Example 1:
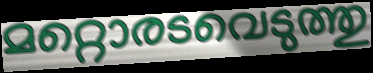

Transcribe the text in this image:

മറ്റൊരടവെടുത്തു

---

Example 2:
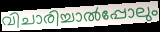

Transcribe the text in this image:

വിചാരിച്ചാൽപ്പോലും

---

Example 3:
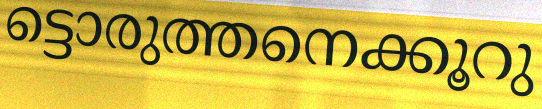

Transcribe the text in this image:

ട്ടൊരുത്തനെക്കൂറു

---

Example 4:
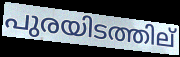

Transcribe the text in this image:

പുരയിടത്തില്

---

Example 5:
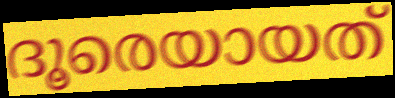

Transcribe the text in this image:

ദൂരെയായത്